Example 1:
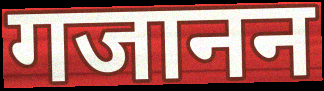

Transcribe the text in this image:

गजानन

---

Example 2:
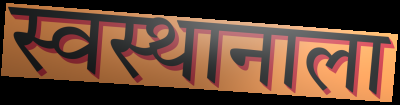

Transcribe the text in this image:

स्वस्थानाला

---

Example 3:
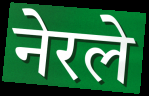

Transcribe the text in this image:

नेरले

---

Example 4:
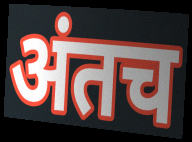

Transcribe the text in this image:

अंतच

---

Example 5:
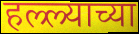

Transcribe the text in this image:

हल्ल्याच्या